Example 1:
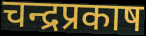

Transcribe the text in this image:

चन्द्रप्रकाष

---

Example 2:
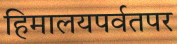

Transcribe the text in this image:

हिमालयपर्वतपर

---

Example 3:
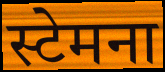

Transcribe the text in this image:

स्टेमना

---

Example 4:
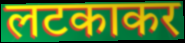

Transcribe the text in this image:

लटकाकर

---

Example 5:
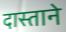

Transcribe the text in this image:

दास्ताने